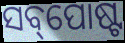
ସବ୍‌ପୋଷ୍ଟ